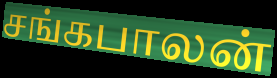
சங்கபாலன்